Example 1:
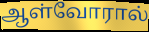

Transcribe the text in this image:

ஆள்வோரால்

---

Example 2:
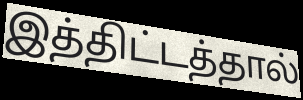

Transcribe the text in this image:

இத்திட்டத்தால்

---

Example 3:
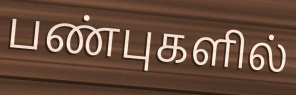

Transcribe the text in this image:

பண்புகளில்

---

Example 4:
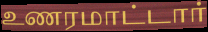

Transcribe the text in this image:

உணரமாட்டார்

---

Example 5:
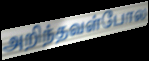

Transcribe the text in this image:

அறிந்தவள்போல